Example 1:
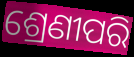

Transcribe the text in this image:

ଶ୍ରେଣୀପରି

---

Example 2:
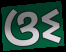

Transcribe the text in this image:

ଓଽ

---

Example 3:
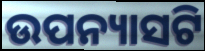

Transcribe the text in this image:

ଉପନ୍ୟାସଟି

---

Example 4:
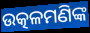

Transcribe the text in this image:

ଉତ୍କଳମଣିଙ୍କ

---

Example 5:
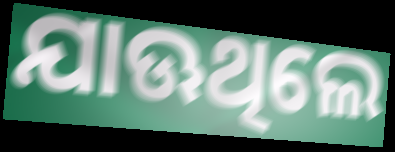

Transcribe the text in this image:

ଯାଊଥିଲେ